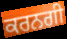
ਕਰਨਗੀ